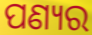
ପଣ୍ୟର